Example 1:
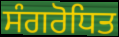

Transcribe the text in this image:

ਸੰਗਰੋਧਿਤ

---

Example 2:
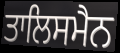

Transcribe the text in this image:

ਤਾਲਿਸਮੈਨ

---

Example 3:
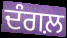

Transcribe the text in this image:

ਦੰਗਲ਼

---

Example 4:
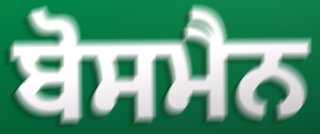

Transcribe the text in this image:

ਬੋਸਮੈਨ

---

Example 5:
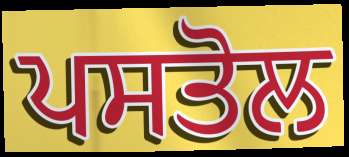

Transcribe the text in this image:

ਪਸਤੋਲ